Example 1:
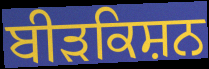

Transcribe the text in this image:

ਬੀੜਕਿਸ਼ਨ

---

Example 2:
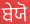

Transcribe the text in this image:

ਬੇਯੋ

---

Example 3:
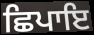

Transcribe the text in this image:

ਛਿਪਾਇ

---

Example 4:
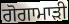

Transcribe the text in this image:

ਗੋਗਾਮਾੜੀ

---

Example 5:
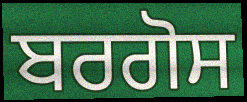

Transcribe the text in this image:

ਬਰਗੋਸ